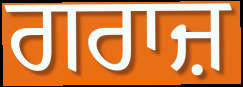
ਗਰਾਜ਼